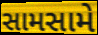
સામસામે